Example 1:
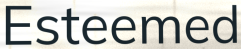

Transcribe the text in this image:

Esteemed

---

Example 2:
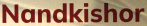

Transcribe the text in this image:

Nandkishor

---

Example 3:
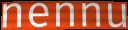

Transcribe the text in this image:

nennu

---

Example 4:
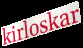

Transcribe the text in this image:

kirloskar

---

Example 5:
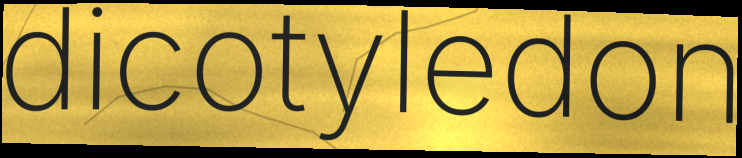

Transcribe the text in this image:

dicotyledon